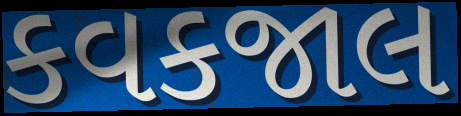
કવકજાલ